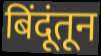
बिंदूंतून